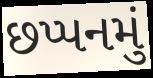
છપ્પનમું